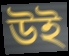
উই